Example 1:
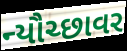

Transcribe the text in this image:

ન્યૌચ્છાવર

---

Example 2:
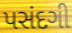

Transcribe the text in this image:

પસંદગી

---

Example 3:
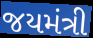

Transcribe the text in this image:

જયમંત્રી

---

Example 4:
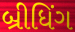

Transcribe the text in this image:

બ્રીધિંગ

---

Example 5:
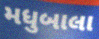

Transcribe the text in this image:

મધુબાલા